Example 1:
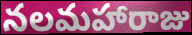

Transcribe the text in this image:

నలమహారాజు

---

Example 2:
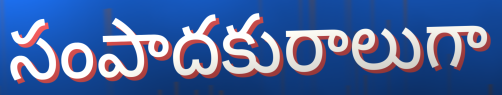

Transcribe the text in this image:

సంపాదకురాలుగా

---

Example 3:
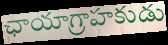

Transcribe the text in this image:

ఛాయాగ్రాహకుడు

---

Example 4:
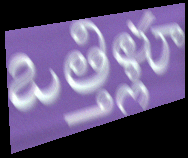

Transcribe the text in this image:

ఒత్తిళ్లూ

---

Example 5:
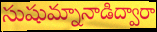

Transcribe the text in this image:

సుషుమ్నానాడిద్వారా